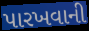
પારખવાની